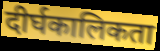
दीर्घकालिकता